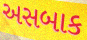
અસબાક